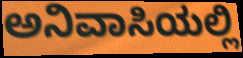
ಅನಿವಾಸಿಯಲ್ಲಿ